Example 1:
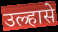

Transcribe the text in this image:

उल्हासे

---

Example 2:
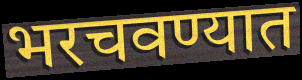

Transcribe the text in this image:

भरचवण्यात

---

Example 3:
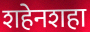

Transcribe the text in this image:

शहेनशहा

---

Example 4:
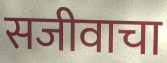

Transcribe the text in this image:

सजीवाचा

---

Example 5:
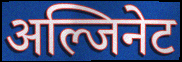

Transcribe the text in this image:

अल्जिनेट